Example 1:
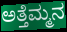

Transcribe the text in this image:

ಅತ್ತೆಮ್ಮನ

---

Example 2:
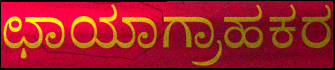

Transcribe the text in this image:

ಛಾಯಾಗ್ರಾಹಕರ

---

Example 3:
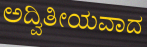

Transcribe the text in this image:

ಅದ್ವಿತೀಯವಾದ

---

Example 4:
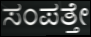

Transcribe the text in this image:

ಸಂಪತ್ತೇ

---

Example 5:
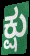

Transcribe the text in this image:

ಕ್ಷು